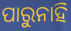
ପାରୁନାହି